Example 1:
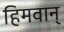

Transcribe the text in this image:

हिमवान्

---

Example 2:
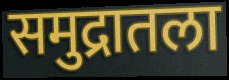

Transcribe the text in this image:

समुद्रातला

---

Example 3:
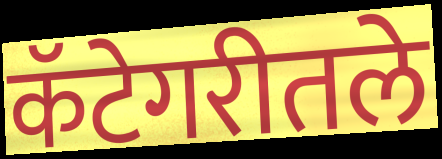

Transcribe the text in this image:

कॅटेगरीतले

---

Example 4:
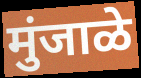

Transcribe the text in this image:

मुंजाळे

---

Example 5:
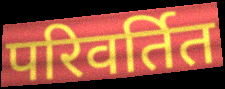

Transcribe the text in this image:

परिवर्तित